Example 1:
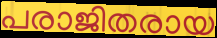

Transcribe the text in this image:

പരാജിതരായ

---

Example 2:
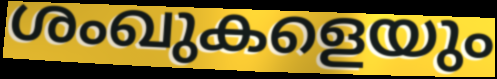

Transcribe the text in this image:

ശംഖുകളെയും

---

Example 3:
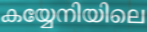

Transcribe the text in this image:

കയ്യേനിയിലെ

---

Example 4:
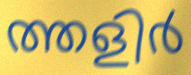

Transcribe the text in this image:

ത്തളിർ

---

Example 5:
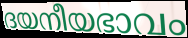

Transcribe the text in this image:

ദയനീയഭാവം